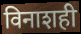
विनाशही